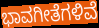
ಭಾವಗೀತೆಗಳಿವೆ